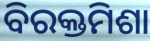
ବିରକ୍ତମିଶା